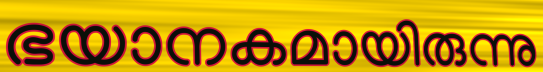
ഭയാനകമായിരുന്നു